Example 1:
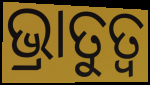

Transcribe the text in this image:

ଭ୍ରାତୁତ୍ଵ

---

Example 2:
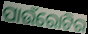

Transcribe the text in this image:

ପାଉଁରୋଟିର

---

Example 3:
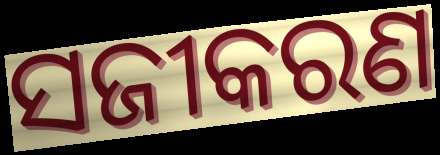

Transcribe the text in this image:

ସଜୀକରଣ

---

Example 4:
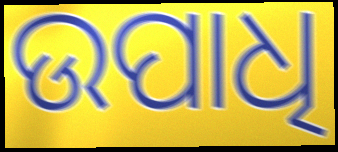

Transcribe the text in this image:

ଉପାଧି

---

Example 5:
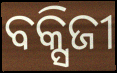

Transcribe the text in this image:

ବକ୍ସିଜୀ